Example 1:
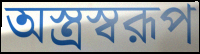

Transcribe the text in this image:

অস্ত্রস্বরূপ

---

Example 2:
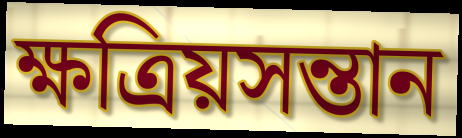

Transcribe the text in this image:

ক্ষত্রিয়সন্তান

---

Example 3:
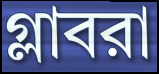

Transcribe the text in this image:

গ্লাবরা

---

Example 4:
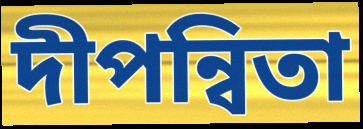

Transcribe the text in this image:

দীপন্বিতা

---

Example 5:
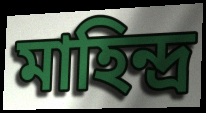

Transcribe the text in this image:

মাহিন্দ্র